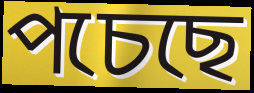
পচেছে